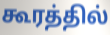
கூரத்தில்